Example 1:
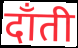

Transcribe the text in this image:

दाँती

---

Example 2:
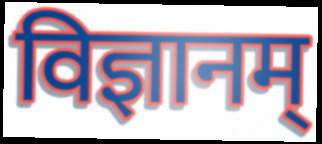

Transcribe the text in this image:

विज्ञानम्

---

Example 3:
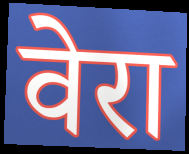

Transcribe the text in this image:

वेरा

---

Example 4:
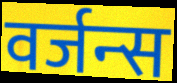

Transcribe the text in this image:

वर्जन्स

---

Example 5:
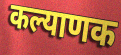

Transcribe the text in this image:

कल्याणक